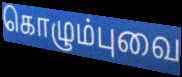
கொழும்புவை